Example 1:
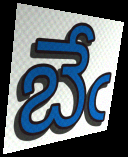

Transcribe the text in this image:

బేఁ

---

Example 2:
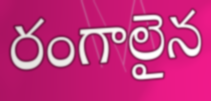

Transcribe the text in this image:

రంగాలైన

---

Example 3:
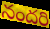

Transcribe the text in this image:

నందరి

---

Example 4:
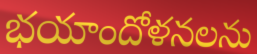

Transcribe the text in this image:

భయాందోళనలను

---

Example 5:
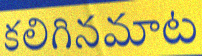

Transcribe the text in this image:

కలిగినమాట